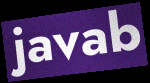
javab